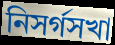
নিসর্গসখা